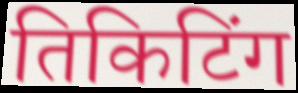
तिकिटिंग